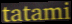
tatami